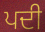
ਪਦੀ